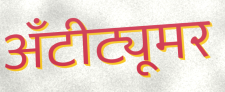
अँटीट्यूमर